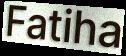
Fatiha